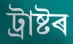
ট্ৰাষ্টৰ